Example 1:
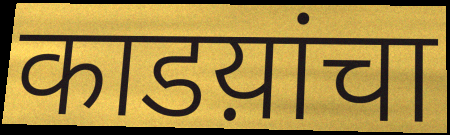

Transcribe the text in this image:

काडय़ांचा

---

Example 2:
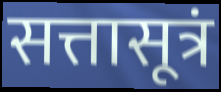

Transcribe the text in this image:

सत्तासूत्रं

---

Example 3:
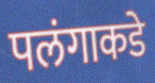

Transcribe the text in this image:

पलंगाकडे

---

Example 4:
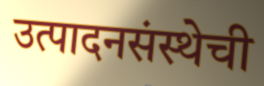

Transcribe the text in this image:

उत्पादनसंस्थेची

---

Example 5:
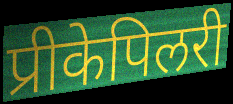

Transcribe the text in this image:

प्रीकेपिलरी